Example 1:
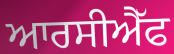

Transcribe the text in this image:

ਆਰਸੀਐੱਫ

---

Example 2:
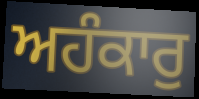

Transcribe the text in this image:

ਅਹੰਕਾਰੁ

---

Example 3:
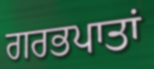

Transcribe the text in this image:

ਗਰਭਪਾਤਾਂ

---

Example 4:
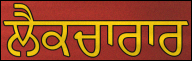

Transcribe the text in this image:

ਲੈਕਚਾਰਾਰ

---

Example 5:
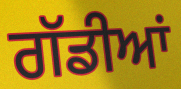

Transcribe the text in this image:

ਗੱਡੀਆਂ